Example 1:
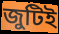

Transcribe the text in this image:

জুটিই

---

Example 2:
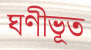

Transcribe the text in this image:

ঘণীভূত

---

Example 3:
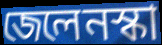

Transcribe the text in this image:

জেলেনস্কা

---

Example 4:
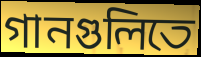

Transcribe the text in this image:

গানগুলিতে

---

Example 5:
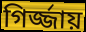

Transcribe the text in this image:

গির্জ্জায়